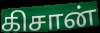
கிசான்